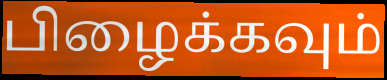
பிழைக்கவும்